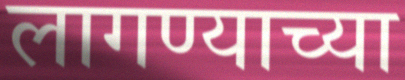
लागण्याच्या